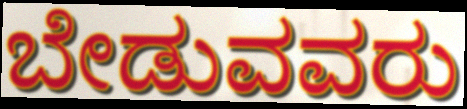
ಬೇಡುವವರು